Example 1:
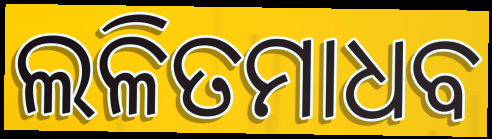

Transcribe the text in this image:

ଲଳିତମାଧବ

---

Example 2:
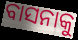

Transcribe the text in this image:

ବାସନାକୁ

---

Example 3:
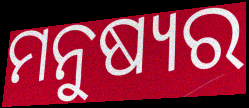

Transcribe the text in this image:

ମନୁଷ୍ୟର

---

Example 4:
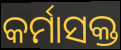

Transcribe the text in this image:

କର୍ମାସକ୍ତ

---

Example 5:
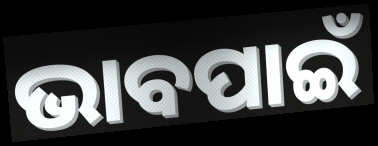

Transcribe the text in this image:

ଭାବପାଇଁ